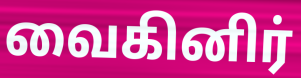
வைகினிர்